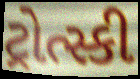
ટ્રોત્સ્કી